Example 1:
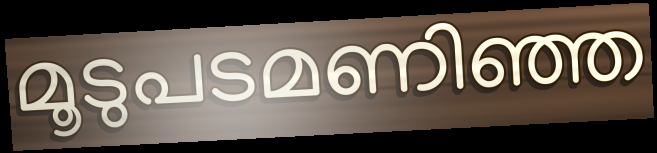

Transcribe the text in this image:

മൂടുപടമണിഞ്ഞ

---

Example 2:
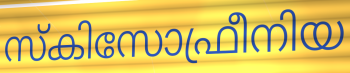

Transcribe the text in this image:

സ്കിസോഫ്രീനിയ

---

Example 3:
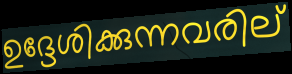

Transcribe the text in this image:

ഉദ്ദേശിക്കുന്നവരില്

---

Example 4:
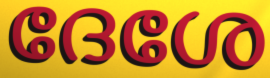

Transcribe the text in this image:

ദേശേ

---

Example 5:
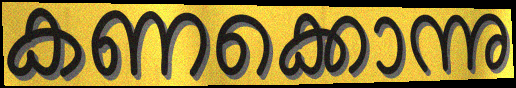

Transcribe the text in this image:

കണക്കൊന്നു